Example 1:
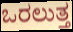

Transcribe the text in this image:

ಒರಲುತ್ತ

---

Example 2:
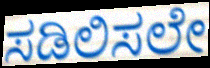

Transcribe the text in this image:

ಸಡಿಲಿಸಲೇ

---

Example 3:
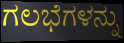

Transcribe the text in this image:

ಗಲಭೆಗಳನ್ನು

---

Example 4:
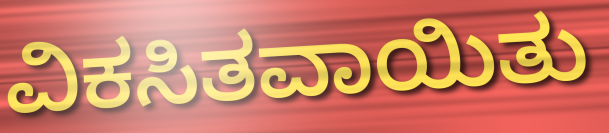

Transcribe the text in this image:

ವಿಕಸಿತವಾಯಿತು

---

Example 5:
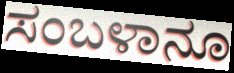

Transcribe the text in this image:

ಸಂಬಳಾನೂ